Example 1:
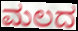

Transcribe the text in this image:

ಮಲದ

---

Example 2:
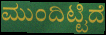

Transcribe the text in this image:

ಮುಂದಿಟ್ಟಿದೆ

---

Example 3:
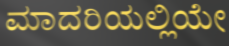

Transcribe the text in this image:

ಮಾದರಿಯಲ್ಲಿಯೇ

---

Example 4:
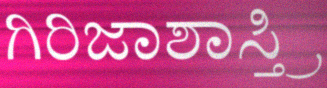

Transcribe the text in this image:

ಗಿರಿಜಾಶಾಸ್ತ್ರಿ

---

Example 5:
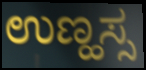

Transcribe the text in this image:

ಉಣ್ಹಸ್ಸ